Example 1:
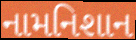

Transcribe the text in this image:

નામનિશાન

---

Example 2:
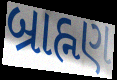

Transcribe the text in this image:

બ્રાહ્નણ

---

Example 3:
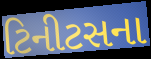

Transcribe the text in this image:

ટિનીટસના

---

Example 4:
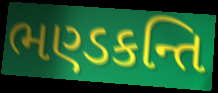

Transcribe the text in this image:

ભણ્ડકન્તિ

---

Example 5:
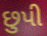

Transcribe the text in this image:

છુપી